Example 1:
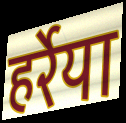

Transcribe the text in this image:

हर्रेया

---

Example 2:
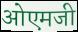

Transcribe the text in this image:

ओएमजी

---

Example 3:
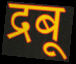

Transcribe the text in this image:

द्रबू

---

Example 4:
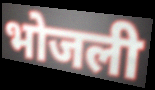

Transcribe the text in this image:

भोजली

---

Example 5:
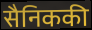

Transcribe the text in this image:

सैनिककी